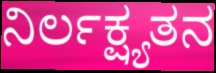
ನಿರ್ಲಕ್ಷ್ಯತನ